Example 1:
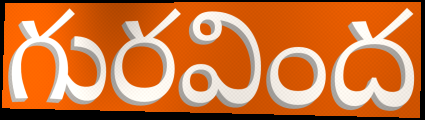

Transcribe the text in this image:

గురవింద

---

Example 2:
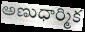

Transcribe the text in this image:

అణుధార్మిక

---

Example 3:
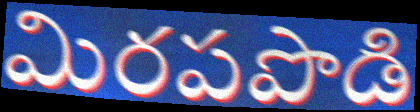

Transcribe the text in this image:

మిరపపొడి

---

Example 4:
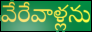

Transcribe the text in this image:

వేరేవాళ్లను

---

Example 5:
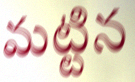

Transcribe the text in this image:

మట్టిన